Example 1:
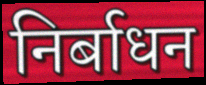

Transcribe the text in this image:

निर्बाधन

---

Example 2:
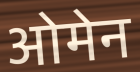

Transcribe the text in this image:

ओमेन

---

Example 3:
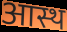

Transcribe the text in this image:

आस्थ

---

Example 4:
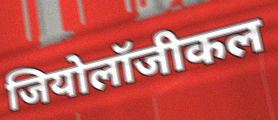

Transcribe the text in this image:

जियोलॉजीकल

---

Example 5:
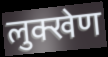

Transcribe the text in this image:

लुक्खेण